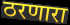
ठरणारा